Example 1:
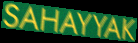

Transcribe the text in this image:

SAHAYYAK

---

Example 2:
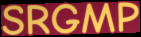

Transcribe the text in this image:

SRGMP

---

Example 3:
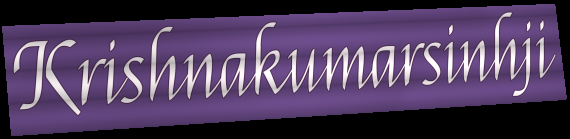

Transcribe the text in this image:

Krishnakumarsinhji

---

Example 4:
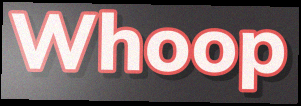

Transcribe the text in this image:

Whoop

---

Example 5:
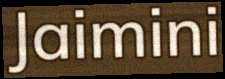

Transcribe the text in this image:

Jaimini